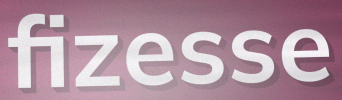
fizesse